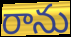
రాను